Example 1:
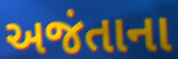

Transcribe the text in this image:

અજંતાના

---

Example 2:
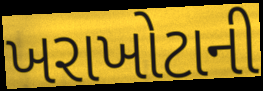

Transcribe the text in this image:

ખરાખોટાની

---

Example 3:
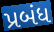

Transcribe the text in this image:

પ્રબંધ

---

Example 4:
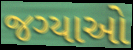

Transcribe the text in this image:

જગ્યાઓ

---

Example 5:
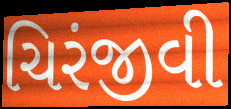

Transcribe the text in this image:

ચિરંજીવી